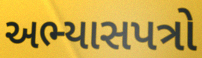
અભ્યાસપત્રો